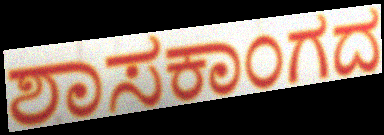
ಶಾಸಕಾಂಗದ